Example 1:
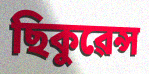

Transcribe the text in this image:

ছিকুৱেন্স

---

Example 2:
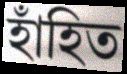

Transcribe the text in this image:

হাঁহিত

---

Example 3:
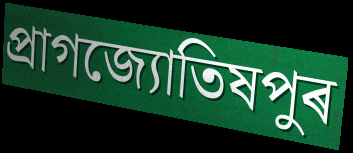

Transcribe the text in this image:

প্ৰাগজ্যোতিষপুৰ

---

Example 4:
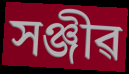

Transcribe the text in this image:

সঞ্জীৱ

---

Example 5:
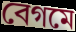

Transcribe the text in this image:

বেগমে